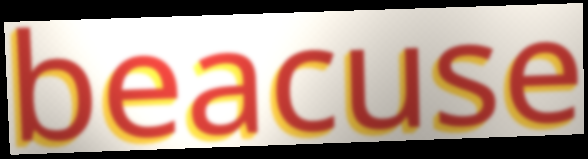
beacuse